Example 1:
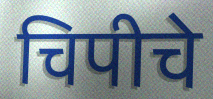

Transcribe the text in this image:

चिपीचे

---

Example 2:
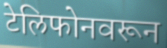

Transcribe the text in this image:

टेलिफोनवरून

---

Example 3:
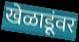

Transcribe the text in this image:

खेळाडूंवर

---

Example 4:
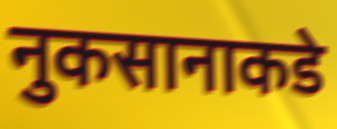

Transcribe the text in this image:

नुकसानाकडे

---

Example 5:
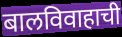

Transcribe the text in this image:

बालविवाहाची